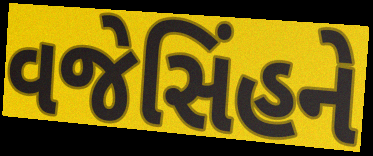
વજેસિંહને